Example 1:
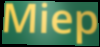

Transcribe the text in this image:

Miep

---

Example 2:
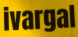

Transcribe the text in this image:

ivargal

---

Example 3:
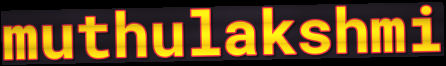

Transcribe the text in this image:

muthulakshmi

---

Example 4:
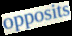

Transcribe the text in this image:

opposits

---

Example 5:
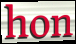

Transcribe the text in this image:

hon